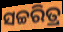
ସଚ୍ଚରିତ୍ର